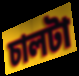
চালটা